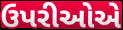
ઉપરીઓએ